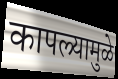
कापल्यामुळे